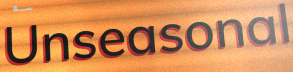
Unseasonal